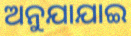
ଅନୁଯାଯାଇ